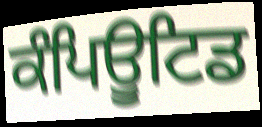
ਕੰਪਿਊਟਿਡ